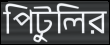
পিটুলির